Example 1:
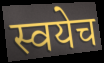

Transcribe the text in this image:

स्वयेच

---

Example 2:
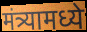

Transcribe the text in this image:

मंत्र्यामध्ये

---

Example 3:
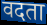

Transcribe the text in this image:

वदता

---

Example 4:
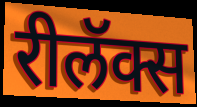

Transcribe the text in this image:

रीलॅक्स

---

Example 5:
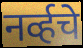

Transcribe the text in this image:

नर्व्हचे